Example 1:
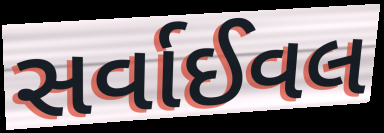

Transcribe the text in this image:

સર્વાઈવલ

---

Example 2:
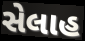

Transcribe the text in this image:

સેલાહ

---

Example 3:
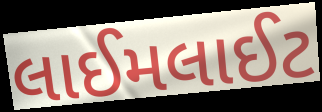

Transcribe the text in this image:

લાઈમલાઈટ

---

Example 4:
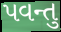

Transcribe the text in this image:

પવન્તુ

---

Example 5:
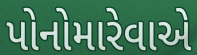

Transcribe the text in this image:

પોનોમારેવાએ